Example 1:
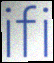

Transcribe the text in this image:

ifi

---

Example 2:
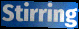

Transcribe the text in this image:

Stirring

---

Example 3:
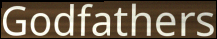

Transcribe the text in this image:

Godfathers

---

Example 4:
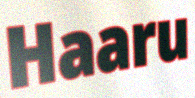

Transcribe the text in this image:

Haaru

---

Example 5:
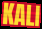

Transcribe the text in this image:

KALI